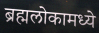
ब्रह्मलोकामध्ये